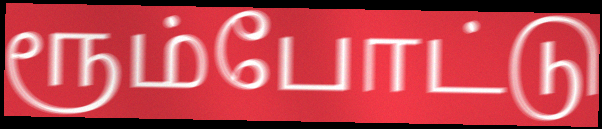
ரூம்போட்டு